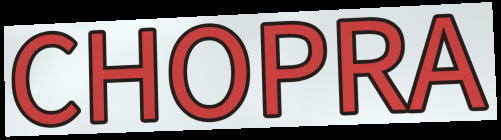
CHOPRA